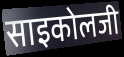
साइकोलजी